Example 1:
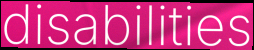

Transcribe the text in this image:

disabilities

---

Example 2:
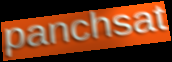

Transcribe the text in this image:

panchsat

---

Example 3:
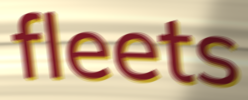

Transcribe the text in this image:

fleets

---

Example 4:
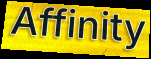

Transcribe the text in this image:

Affinity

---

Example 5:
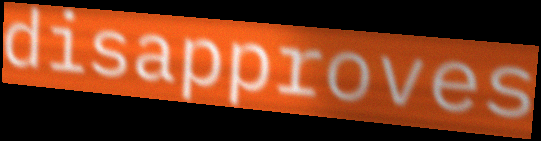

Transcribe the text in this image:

disapproves